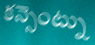
కన్సెంట్ను